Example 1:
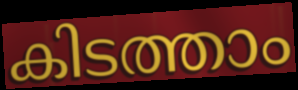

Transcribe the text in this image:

കിടത്താം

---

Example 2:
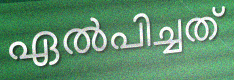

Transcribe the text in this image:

ഏൽപിച്ചത്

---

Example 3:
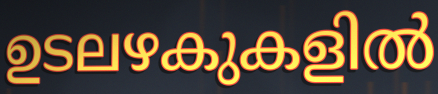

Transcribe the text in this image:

ഉടലഴകുകളിൽ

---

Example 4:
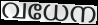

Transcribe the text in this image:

വധേന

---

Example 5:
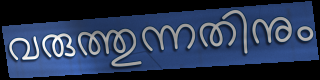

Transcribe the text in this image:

വരുത്തുന്നതിനും